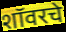
शॉवरचे